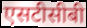
एसटीसीबी